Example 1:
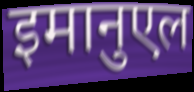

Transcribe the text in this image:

इमानुएल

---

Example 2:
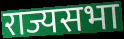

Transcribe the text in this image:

राज्यसभा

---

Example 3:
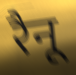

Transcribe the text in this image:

रैनू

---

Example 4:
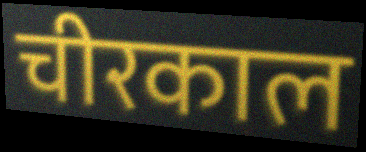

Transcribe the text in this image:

चीरकाल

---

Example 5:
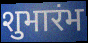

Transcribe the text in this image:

शुभारंभ